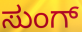
ಸುಂಗ್